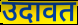
उदावत